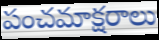
పంచమాక్షరాలు